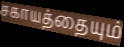
சகாயத்தையும்